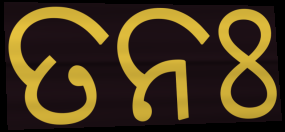
ତନଃ